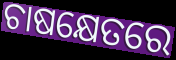
ଚାଷକ୍ଷେତରେ